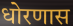
धोरणास